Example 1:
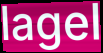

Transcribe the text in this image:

lagel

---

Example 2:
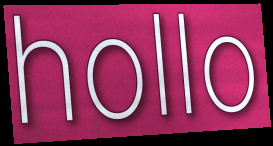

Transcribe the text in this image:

hollo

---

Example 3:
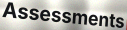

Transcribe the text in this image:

Assessments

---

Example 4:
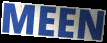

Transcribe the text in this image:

MEEN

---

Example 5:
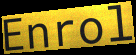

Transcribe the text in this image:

Enrol